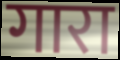
गारा